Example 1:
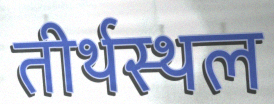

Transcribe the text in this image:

तीर्थस्थल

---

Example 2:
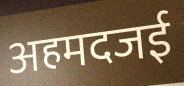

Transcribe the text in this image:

अहमदजई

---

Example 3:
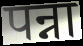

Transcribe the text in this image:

पन्ना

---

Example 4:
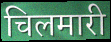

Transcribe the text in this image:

चिलमारी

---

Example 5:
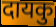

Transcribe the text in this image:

दायकु